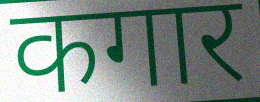
कगार